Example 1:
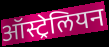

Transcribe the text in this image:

ऑस्ट्रेलियन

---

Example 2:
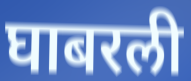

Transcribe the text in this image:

घाबरली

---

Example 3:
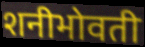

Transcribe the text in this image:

शनीभोवती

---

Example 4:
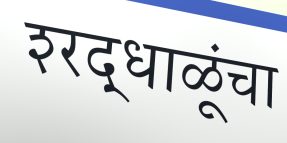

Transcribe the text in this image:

श्रद्धाळूंचा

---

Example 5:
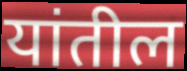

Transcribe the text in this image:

यांतील